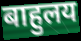
बाहुलय